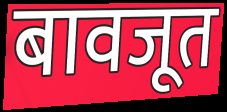
बावजूत